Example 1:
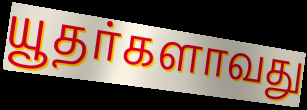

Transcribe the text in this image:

யூதர்களாவது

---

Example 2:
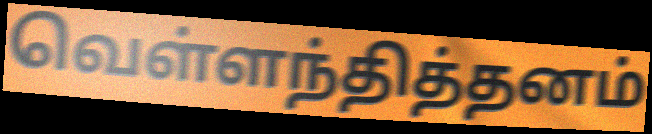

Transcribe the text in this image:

வெள்ளந்தித்தனம்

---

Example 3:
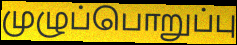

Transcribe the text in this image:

முழுப்பொறுப்பு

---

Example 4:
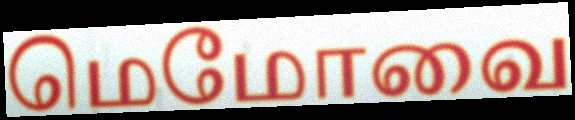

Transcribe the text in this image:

மெமோவை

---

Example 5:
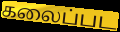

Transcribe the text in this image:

கலைப்பட